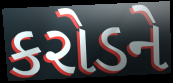
કરોડને